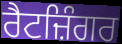
ਰੈਟਜ਼ਿੰਗਰ